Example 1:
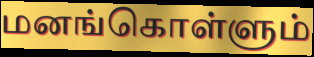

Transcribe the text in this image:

மனங்கொள்ளும்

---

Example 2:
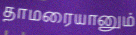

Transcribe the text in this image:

தாமரையானும்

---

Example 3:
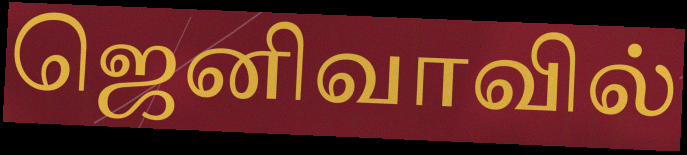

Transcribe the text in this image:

ஜெனிவாவில்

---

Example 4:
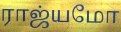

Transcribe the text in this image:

ராஜ்யமோ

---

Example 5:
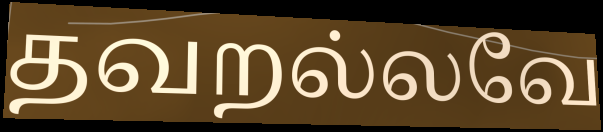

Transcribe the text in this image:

தவறல்லவே